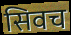
सिवच